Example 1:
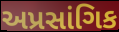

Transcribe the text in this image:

અપ્રસાંગિક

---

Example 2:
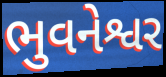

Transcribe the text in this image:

ભુવનેશ્વર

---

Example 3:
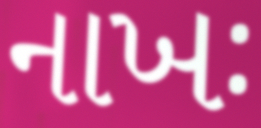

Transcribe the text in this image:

નાખઃ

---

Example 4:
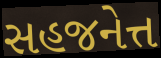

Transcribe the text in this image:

સહજનેત્ત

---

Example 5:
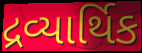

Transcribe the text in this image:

દ્રવ્યાર્થિક